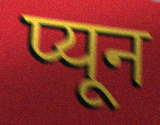
प्यून